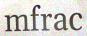
mfrac